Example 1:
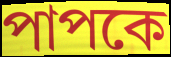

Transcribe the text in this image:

পাপকে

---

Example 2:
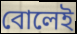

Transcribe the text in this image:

বোলেই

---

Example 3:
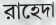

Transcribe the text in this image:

রাহেদা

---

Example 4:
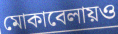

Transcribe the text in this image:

মোকাবেলায়ও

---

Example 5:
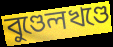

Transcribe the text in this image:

বুণ্ডেলখণ্ডে